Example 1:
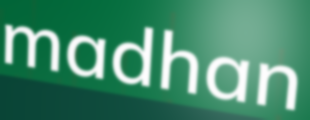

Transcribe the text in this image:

madhan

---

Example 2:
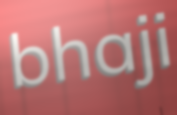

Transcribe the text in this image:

bhaji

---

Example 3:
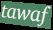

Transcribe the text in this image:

tawaf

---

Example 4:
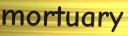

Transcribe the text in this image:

mortuary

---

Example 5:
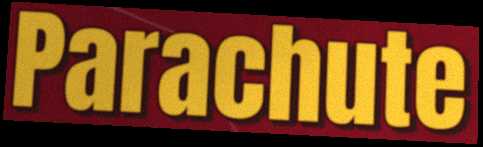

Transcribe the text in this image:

Parachute